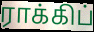
ராக்கிப்